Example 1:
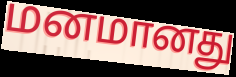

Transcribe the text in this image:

மனமானது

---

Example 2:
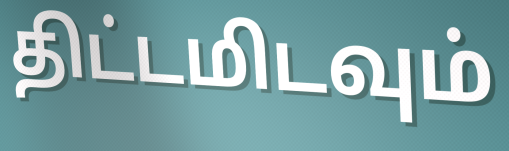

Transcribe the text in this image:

திட்டமிடவும்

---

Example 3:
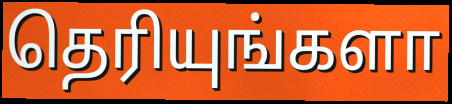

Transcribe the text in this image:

தெரியுங்களா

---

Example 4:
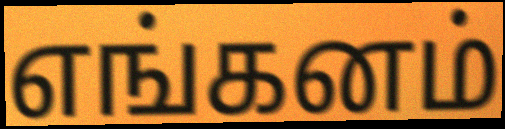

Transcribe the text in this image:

எங்கனம்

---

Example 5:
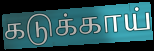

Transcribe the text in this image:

கடுக்காய்